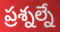
ప్రశ్నల్నే